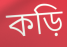
কড়ি